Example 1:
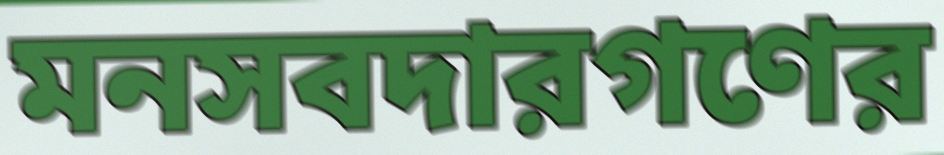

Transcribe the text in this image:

মনসবদারগণের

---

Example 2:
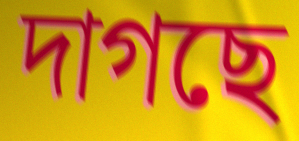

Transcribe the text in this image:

দাগছে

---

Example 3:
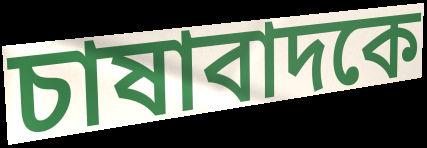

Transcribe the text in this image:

চাষাবাদকে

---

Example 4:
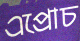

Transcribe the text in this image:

এপ্রোচ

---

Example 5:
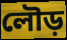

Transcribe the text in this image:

লৌড়